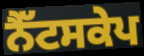
ਨੈੱਟਸਕੇਪ